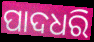
ପାଦଧରି